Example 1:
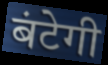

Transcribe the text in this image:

बंटेगी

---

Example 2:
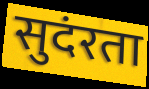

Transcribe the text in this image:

सुदंरता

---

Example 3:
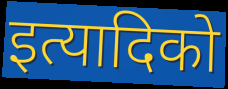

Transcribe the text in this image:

इत्यादिको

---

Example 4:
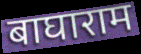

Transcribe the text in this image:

बाघाराम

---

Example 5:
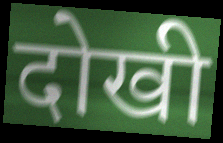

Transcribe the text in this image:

दोखी